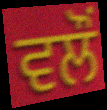
ਵਲੌਂ